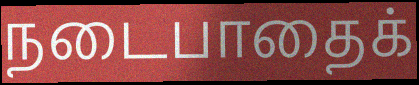
நடைபாதைக்